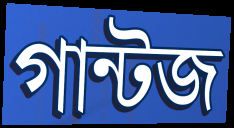
গান্টজ